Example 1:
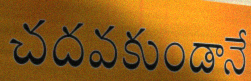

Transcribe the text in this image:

చదవకుండానే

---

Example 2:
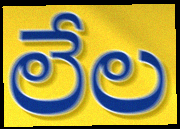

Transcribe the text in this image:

లేల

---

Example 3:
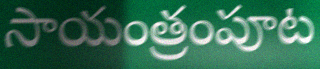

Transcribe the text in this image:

సాయంత్రంపూట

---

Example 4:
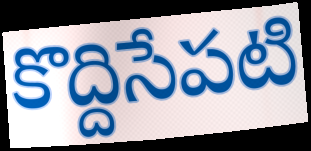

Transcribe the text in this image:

కొద్దిసేపటి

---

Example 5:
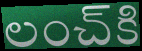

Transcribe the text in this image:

లంచ్‌కి